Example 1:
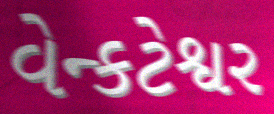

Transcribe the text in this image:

વેન્કટેશ્વર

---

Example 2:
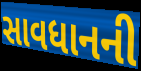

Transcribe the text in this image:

સાવધાનની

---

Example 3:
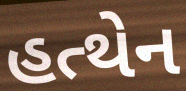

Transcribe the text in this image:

હત્થેન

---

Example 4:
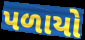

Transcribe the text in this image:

પળાયો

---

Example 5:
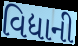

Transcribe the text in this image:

વિદ્યાની